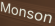
Monson